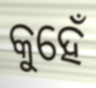
କୁହେଁ